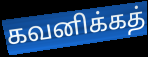
கவனிக்கத்